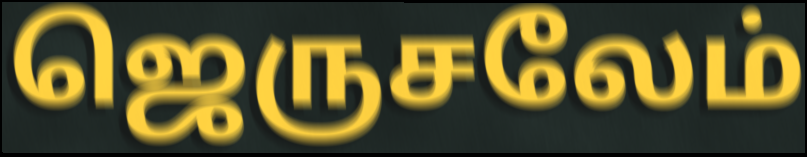
ஜெருசலேம்